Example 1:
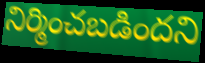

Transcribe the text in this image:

నిర్మించబడిందని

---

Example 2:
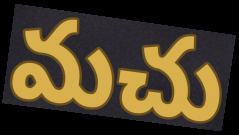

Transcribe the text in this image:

మచు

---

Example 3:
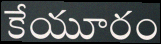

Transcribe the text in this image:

కేయూరం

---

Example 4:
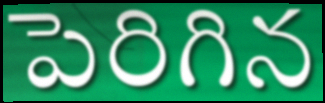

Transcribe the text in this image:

పెరిగిన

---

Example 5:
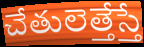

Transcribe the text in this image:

చేతులెత్తేస్తే